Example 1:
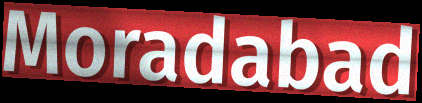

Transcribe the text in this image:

Moradabad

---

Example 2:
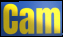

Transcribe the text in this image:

Cam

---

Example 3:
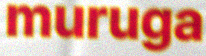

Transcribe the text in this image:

muruga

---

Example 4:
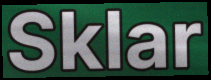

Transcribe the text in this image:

Sklar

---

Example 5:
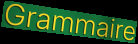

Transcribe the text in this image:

Grammaire